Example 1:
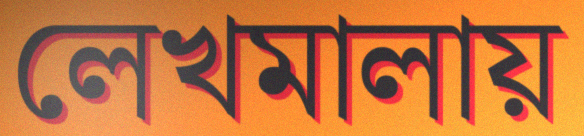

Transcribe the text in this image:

লেখমালায়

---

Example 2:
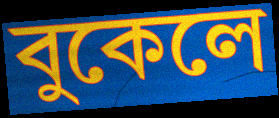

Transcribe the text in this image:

বুকেলে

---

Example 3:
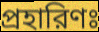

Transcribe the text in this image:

প্রহারিণঃ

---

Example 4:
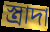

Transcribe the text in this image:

স্ত্রাদা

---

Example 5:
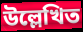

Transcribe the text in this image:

উল্লেখিত